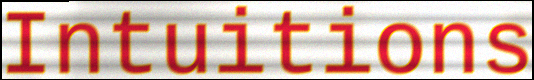
Intuitions